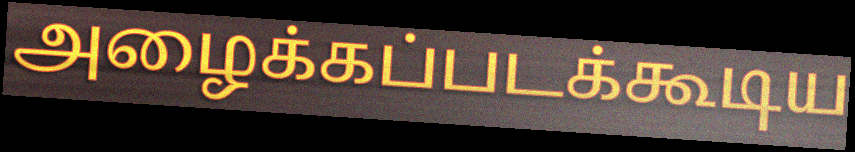
அழைக்கப்படக்கூடிய